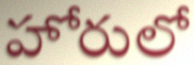
హోరులో